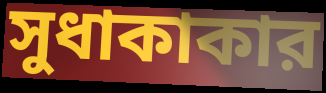
সুধাকাকার